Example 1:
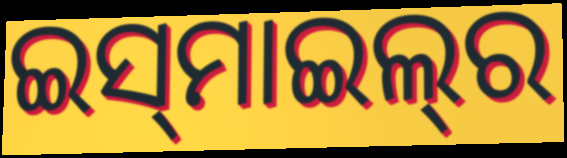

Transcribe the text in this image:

ଇସ୍‌ମାଇଲ୍‌ର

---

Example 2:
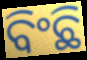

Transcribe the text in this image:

ବିଂଛି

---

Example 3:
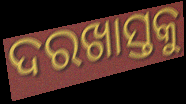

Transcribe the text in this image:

ଦରଖାସ୍ତକୁ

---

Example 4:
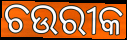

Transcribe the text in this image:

ଚଉରୀକ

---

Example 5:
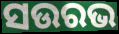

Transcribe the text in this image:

ସଉରଭ